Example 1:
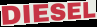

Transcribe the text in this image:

DIESEL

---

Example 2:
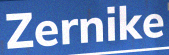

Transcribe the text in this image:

Zernike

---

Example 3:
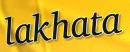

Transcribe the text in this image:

lakhata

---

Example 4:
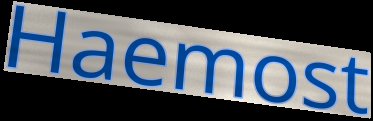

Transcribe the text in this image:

Haemost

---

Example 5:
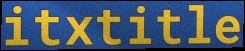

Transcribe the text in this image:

itxtitle